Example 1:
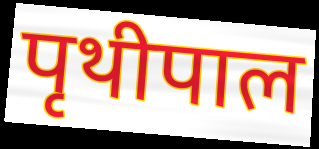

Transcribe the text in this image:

पृथीपाल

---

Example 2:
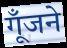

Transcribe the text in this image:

गूँजने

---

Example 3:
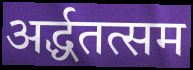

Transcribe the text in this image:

अर्द्धतत्सम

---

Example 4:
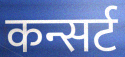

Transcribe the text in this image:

कन्सर्ट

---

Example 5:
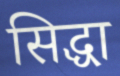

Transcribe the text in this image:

सिद्धा